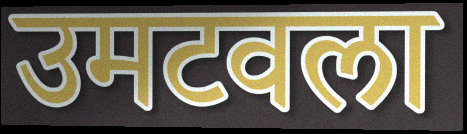
उमटवला